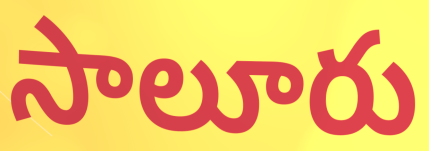
సాలూరు